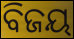
ବିଜୟ